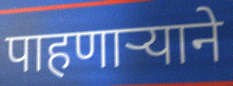
पाहणार्‍याने